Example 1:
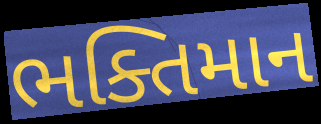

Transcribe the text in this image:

ભક્તિમાન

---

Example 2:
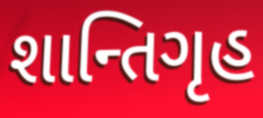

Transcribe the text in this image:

શાન્તિગૃહ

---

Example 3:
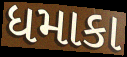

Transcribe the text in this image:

ધમાકા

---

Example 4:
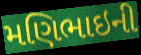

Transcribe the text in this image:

મણિભાઇની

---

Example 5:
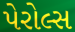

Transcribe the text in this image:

પેરોલ્સ